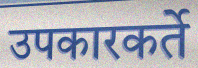
उपकारकर्ते